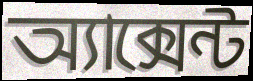
অ্যাক্সেন্ট